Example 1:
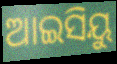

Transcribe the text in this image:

ଆଇସିୟୁ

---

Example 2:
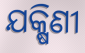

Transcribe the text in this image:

ଯକ୍ଷିଣୀ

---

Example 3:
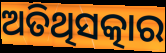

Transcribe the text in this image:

ଅତିଥିସତ୍କାର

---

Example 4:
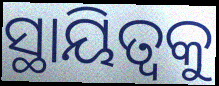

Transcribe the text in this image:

ସ୍ଥାୟିତ୍ୱକୁ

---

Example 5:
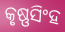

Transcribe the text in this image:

କୃଷ୍ଣସିଂହ